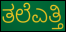
ತಲೆಎತ್ತಿ